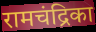
रामचंद्रिका